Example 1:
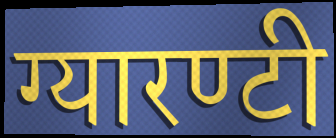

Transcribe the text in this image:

ग्यारण्टी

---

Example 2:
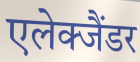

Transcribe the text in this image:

एलेक्जैंडर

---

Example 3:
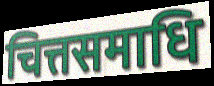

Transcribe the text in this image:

चित्तसमाधि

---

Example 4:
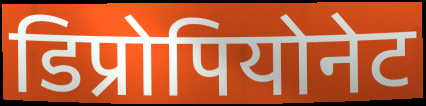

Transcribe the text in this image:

डिप्रोपियोनेट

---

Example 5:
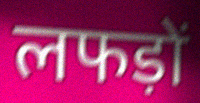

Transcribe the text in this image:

लफड़ों